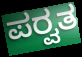
ಪರ್‍ವತ